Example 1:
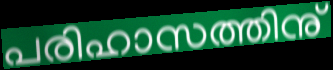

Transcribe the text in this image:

പരിഹാസത്തിനു്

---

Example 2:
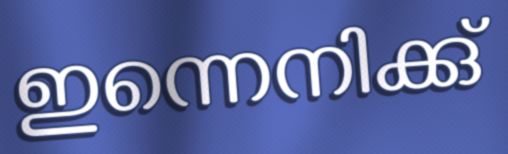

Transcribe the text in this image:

ഇന്നെനിക്കു്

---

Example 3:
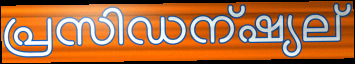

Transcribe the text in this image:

പ്രസിഡന്ഷ്യല്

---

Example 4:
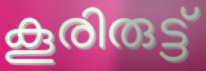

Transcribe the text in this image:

കൂരിരുട്ട്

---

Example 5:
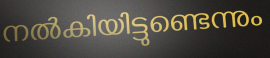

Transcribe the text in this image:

നൽകിയിട്ടുണ്ടെന്നും